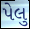
પેલુ